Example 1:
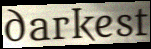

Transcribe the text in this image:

darkest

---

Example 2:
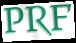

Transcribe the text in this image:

PRF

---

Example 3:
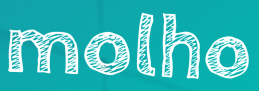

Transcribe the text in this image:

molho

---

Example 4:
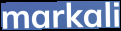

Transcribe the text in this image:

markali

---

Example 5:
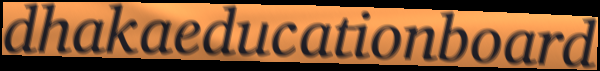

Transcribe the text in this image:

dhakaeducationboard